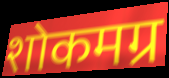
शोकमग्र